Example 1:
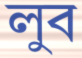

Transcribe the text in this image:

লুব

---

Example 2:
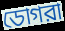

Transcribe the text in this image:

ডোগরা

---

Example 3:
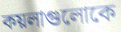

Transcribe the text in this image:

কয়লাগুলোকে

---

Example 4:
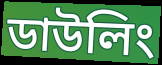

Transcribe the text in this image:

ডাউলিং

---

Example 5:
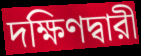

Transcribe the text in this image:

দক্ষিণদ্বারী